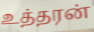
உத்தரன்